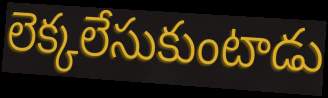
లెక్కలేసుకుంటాడు